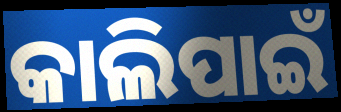
କାଲିପାଇଁ